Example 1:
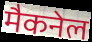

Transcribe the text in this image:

मैकनेल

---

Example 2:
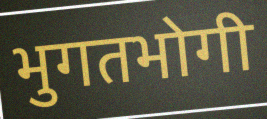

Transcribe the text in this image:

भुगतभोगी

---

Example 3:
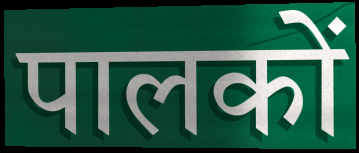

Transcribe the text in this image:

पालकों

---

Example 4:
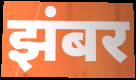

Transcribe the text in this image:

झंबर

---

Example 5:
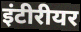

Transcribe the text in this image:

इंटीरीयर